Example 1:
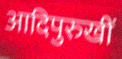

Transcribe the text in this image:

आदिपुरुखीं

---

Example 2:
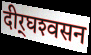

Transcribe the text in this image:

दीर्घश्वसन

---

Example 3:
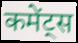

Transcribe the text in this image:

कमेंट्‌स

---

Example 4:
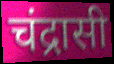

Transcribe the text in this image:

चंद्रासी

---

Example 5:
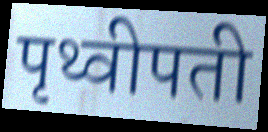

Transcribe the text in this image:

पृथ्वीपती